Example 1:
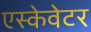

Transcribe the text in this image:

एस्केवेटर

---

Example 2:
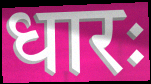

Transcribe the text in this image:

धारः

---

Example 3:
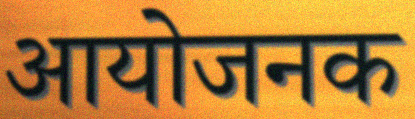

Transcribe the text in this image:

आयोजनक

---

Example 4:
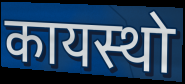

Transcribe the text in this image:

कायस्थो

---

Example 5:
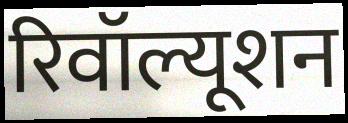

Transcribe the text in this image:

रिवॉल्यूशन